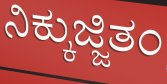
ನಿಕ್ಕುಜ್ಜಿತಂ